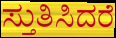
ಸ್ತುತಿಸಿದರೆ